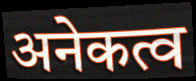
अनेकत्व